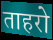
ताहरो